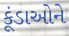
કૂંડાઓને